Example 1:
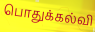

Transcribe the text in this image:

பொதுக்கல்வி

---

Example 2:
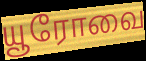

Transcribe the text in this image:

யூரோவை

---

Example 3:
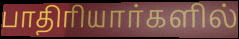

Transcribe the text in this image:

பாதிரியார்களில்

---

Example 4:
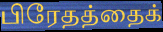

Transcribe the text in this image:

பிரேதத்தைக்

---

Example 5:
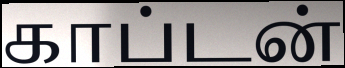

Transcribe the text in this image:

காப்டன்